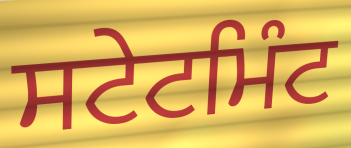
ਸਟੇਟਮਿੰਟ